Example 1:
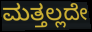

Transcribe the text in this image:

ಮತ್ತಲ್ಲದೇ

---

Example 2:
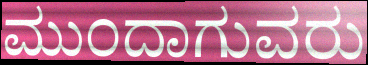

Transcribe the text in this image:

ಮುಂದಾಗುವರು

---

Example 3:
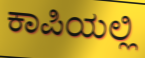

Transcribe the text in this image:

ಕಾಪಿಯಲ್ಲಿ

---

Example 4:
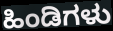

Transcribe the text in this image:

ಹಿಂಡಿಗಳು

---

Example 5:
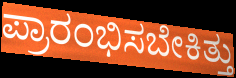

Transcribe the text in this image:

ಪ್ರಾರಂಭಿಸಬೇಕಿತ್ತು